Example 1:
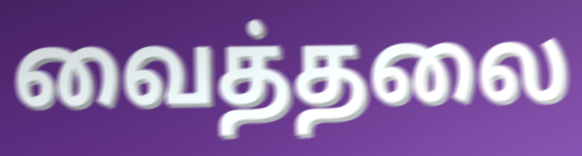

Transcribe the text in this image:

வைத்தலை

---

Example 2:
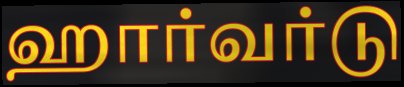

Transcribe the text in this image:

ஹார்வர்டு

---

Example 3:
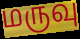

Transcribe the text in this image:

மருவு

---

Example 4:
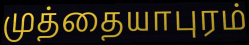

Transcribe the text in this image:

முத்தையாபுரம்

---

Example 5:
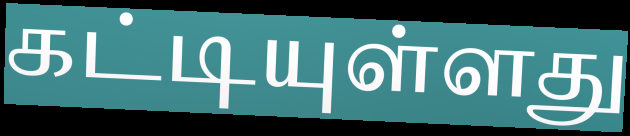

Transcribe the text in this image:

கட்டியுள்ளது